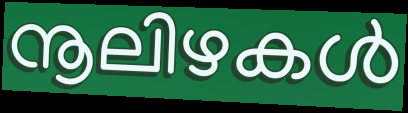
നൂലിഴകൾ